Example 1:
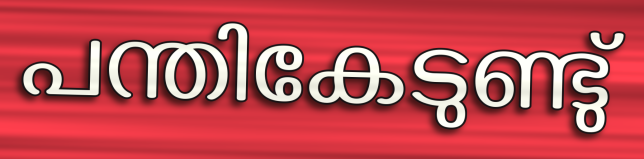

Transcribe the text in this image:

പന്തികേടുണ്ടു്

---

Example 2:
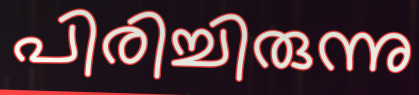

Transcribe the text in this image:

പിരിച്ചിരുന്നു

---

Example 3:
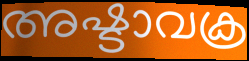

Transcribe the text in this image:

അഷ്ടാവക്ര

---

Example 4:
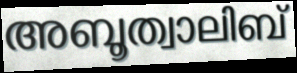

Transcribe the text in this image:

അബൂത്വാലിബ്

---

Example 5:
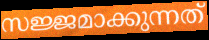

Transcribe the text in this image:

സജ്ജമാക്കുന്നത്